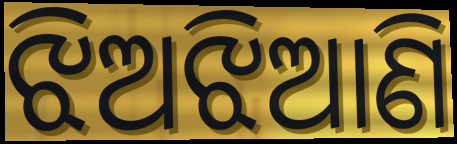
ଝିଅଝିଆଣି